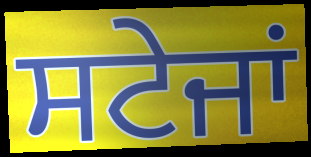
ਸਟੇਜਾਂ